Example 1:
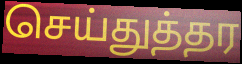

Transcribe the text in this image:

செய்துத்தர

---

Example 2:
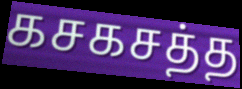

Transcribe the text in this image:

கசகசத்த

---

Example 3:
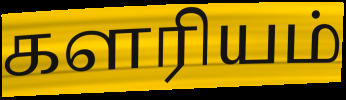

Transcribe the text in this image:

களரியம்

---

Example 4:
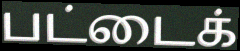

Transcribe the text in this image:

பட்டைக்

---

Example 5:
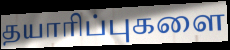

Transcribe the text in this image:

தயாரிப்புகளை